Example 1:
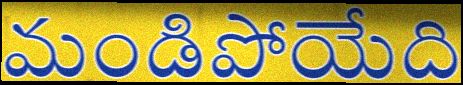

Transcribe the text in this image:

మండిపోయేది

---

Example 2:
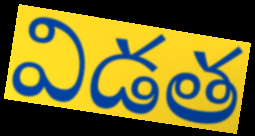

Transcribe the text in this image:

విడత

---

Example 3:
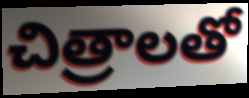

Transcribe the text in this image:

చిత్రాలతో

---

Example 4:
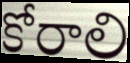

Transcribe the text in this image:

కోరాలి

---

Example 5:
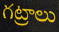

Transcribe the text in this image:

గట్రాలు